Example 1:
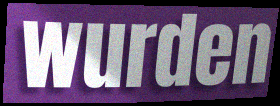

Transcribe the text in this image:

wurden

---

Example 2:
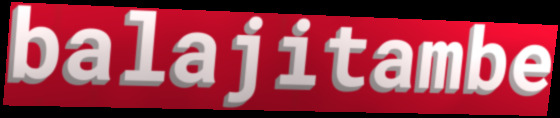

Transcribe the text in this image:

balajitambe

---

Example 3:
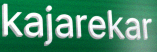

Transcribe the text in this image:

kajarekar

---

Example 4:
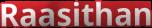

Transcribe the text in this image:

Raasithan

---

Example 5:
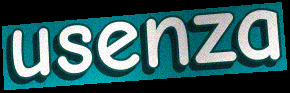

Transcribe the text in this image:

usenza